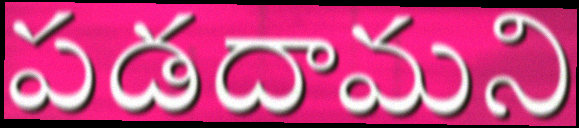
పడదామని